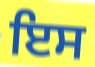
ਇਸ